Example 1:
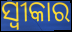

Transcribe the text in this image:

ସ୍ବୀକାର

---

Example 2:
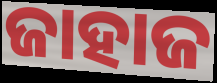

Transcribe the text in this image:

ଜାହାଜ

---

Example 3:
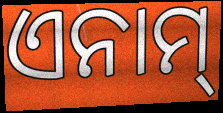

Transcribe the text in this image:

ଏନାମ୍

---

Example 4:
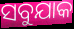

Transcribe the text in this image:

ସବୁଯାକ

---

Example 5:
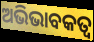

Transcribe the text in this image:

ଅଭିଭାବକତ୍ବ